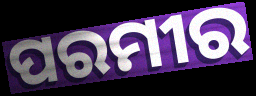
ପରମୀର